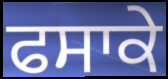
ਫਸਾਕੇ